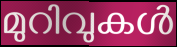
മുറിവുകൾ